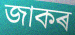
জাকৰ